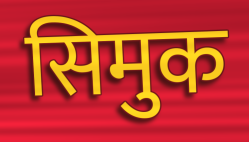
सिमुक